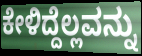
ಕೇಳಿದ್ದೆಲ್ಲವನ್ನು